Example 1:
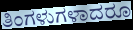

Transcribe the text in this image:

ತಿಂಗಳುಗಳಾದರೂ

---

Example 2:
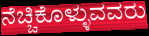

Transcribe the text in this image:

ನೆಚ್ಚಿಕೊಳ್ಳುವವರು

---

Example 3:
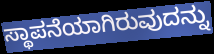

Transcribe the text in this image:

ಸ್ಥಾಪನೆಯಾಗಿರುವುದನ್ನು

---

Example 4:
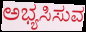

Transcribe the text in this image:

ಅಭ್ಯಸಿಸುವ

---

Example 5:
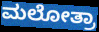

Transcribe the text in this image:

ಮಲೋತ್ರಾ